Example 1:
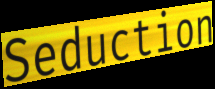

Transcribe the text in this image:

Seduction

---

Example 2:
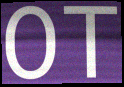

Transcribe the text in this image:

OT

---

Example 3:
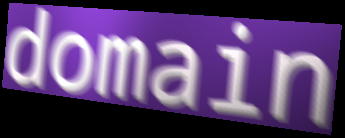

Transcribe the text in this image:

domain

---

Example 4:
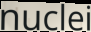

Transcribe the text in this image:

nuclei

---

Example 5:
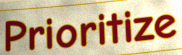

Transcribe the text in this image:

Prioritize